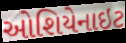
ઓશિયેનાઇટ